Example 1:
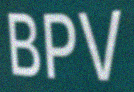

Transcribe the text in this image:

BPV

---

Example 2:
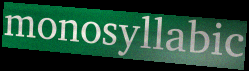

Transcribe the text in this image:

monosyllabic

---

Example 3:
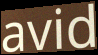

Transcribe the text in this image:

avid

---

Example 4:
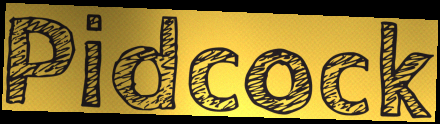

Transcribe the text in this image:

Pidcock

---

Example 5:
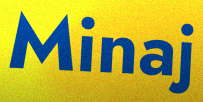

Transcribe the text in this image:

Minaj